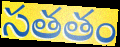
సతతం